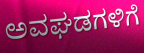
ಅವಘಡಗಳಿಗೆ